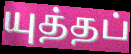
யுத்தப்